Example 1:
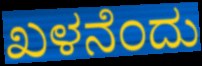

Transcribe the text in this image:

ಖಳನೆಂದು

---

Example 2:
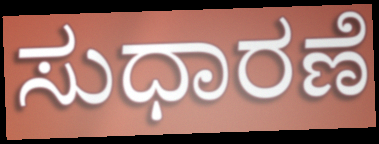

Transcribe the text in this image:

ಸುಧಾರಣೆ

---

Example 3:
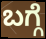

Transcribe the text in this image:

ಬಗ್ಗೆ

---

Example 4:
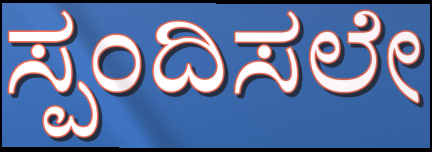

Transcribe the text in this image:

ಸ್ಪಂದಿಸಲೇ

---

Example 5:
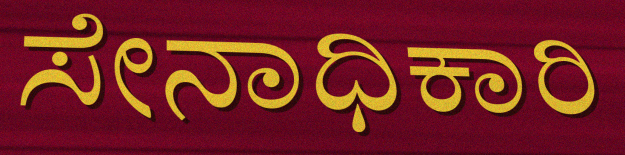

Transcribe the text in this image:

ಸೇನಾಧಿಕಾರಿ